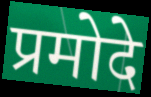
प्रमोदे